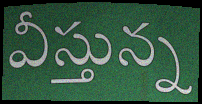
వీస్తున్న